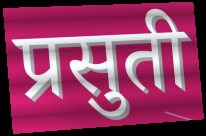
प्रसुती